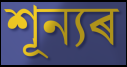
শূন্যৰ